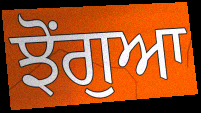
ਝੋਂਗੁਆ